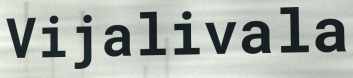
Vijalivala